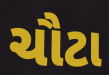
ચૌટા